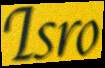
Isro